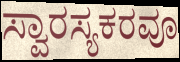
ಸ್ವಾರಸ್ಯಕರವೂ